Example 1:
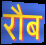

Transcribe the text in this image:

रौब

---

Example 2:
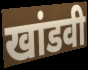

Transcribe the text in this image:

खांडवी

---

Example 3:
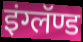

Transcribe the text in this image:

इंग्लॅण्ड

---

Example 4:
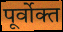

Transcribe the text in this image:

पूर्वोक्त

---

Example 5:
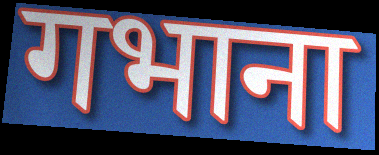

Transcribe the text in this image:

गभाना